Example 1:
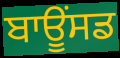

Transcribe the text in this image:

ਬਾਊਂਸਡ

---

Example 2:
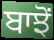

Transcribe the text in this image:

ਬਾਝੋਂ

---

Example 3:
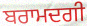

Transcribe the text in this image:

ਬਰਾਮਦਗੀ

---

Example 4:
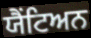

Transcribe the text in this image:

ਯੈਂਟਿਅਨ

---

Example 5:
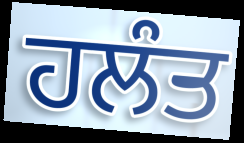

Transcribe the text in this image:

ਹਲੰਤ